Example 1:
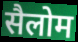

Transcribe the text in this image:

सैलोम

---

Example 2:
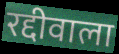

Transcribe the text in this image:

रद्दीवाला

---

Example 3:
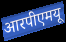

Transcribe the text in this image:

आरपीएमयू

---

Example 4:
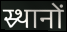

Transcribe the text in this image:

स्र्थानों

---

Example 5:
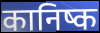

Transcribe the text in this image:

कानिष्क